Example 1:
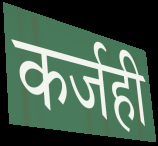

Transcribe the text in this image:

कर्जही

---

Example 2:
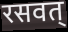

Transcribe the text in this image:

रसवत्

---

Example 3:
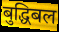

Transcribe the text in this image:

बुद्धिबल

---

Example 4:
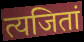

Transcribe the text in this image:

त्यजितां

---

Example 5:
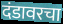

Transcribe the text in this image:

दंडावरचा